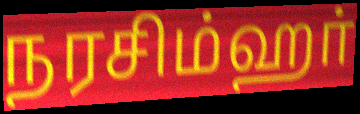
நரசிம்ஹர்